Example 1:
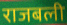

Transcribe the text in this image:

राजबली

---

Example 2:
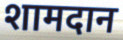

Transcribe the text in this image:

शामदान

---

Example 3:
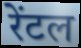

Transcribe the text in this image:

रेंटल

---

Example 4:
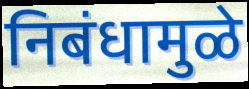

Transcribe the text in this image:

निबंधामुळे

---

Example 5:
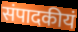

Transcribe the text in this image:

संपादकीयं